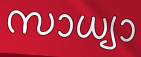
സാധ്യാ